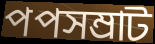
পপসম্রাট